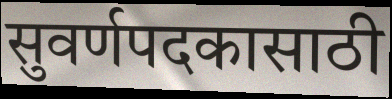
सुवर्णपदकासाठी